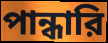
পান্ধারি